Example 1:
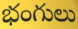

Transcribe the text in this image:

భంగులు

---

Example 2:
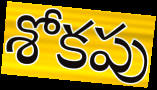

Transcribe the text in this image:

శోకపు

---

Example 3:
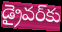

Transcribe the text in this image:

డ్రైవర్‌కు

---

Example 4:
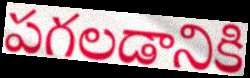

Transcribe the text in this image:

పగలడానికి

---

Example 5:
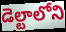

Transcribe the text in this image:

డెల్టాలోని